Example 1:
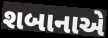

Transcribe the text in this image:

શબાનાએ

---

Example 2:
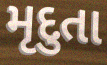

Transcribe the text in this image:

મૃદુતા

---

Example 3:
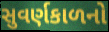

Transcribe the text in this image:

સુવર્ણકાળનો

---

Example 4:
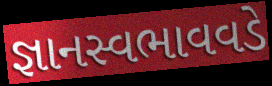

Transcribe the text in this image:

જ્ઞાનસ્વભાવવડે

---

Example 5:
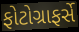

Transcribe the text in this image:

ફોટોગ્રાફર્સે